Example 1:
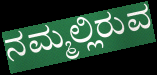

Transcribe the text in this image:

ನಮ್ಮಲ್ಲಿರುವ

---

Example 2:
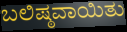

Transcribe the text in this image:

ಬಲಿಷ್ಠವಾಯಿತು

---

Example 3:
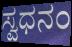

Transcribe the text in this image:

ಸ್ವಧನಂ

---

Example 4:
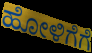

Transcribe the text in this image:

ಹೋಳಿಗೆಗೆ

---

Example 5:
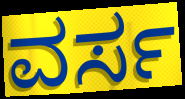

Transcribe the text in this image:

ವರ್ಸ